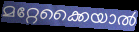
മറ്റേക്കൈയാൽ